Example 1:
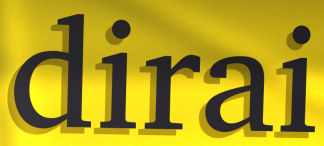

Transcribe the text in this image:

dirai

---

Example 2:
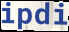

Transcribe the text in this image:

ipdi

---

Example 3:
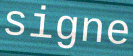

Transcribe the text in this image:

signe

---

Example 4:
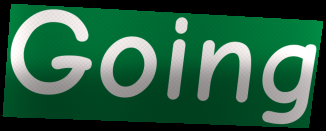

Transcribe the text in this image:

Going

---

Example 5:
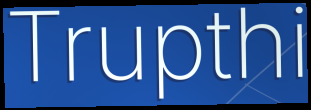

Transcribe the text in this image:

Trupthi